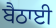
ਬੈਠਾਈ